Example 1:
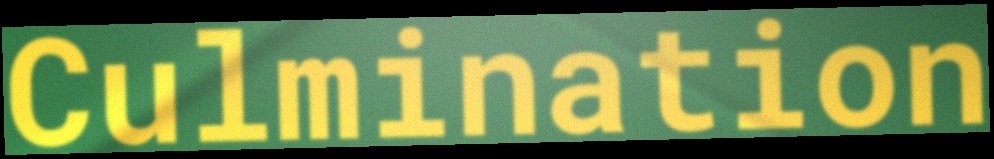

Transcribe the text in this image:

Culmination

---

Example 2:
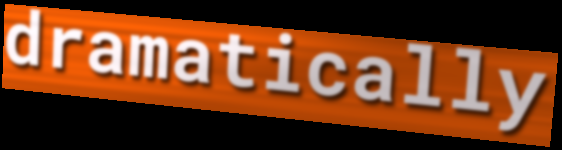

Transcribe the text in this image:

dramatically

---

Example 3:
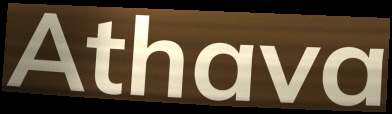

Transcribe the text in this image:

Athava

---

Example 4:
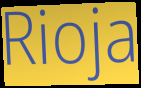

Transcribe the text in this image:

Rioja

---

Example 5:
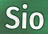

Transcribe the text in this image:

Sio